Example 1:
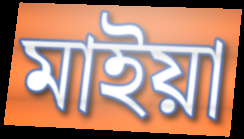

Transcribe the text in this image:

মাইয়া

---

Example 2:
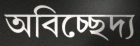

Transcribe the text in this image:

অবিচ্ছেদ্য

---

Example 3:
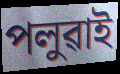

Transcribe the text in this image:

পলুৱাই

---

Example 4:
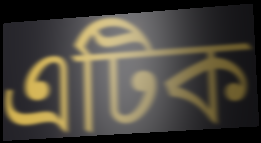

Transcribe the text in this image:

এটিক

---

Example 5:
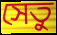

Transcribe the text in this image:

সেতু